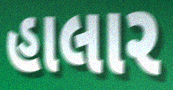
હાલાર